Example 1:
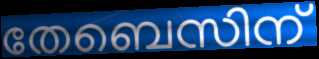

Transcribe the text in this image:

തേബെസിന്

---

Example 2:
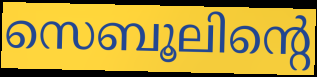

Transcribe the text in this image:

സെബൂലിന്റെ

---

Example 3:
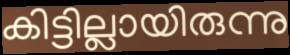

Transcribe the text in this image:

കിട്ടില്ലായിരുന്നു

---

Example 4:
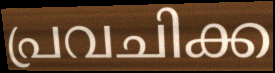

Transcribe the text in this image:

പ്രവചിക്ക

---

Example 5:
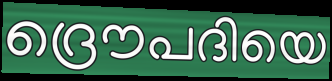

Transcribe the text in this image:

ദ്രൌപദിയെ